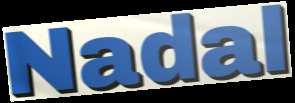
Nadal